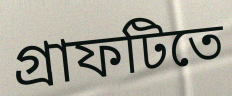
গ্রাফটিতে